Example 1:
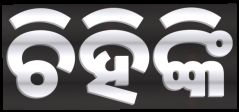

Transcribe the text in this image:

ଚିହିଙ୍କି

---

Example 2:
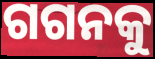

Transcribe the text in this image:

ଗଗନକୁ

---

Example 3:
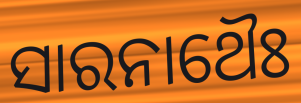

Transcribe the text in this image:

ସାରନାଥୈଃ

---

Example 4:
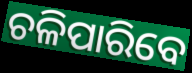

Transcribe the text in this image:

ଚଳିପାରିବେ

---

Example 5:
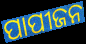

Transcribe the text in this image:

ପାପୀଜନ